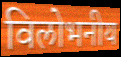
विलोभनीय